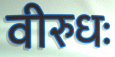
वीरुधः